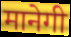
मानेगी